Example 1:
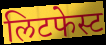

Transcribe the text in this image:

लिटफेस्ट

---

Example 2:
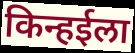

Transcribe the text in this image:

किन्हईला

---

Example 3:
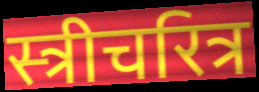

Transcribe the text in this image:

स्त्रीचरित्र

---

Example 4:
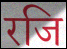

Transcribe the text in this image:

रजि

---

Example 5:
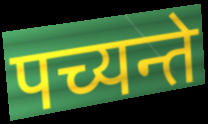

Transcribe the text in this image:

पच्यन्ते